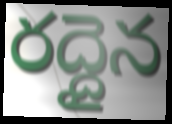
రద్దైన